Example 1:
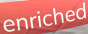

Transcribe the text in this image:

enriched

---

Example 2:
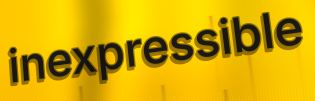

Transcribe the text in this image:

inexpressible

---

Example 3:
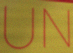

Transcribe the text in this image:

UN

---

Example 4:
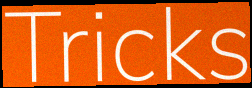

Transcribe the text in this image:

Tricks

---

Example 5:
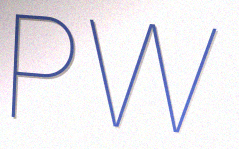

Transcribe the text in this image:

PW